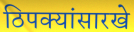
ठिपक्यांसारखे